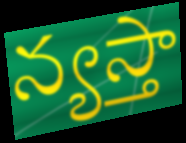
న్యస్తా